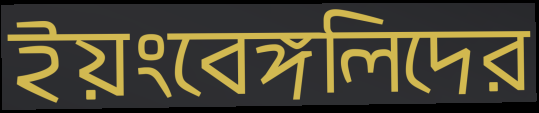
ইয়ংবেঙ্গলিদের